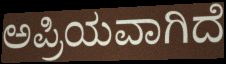
ಅಪ್ರಿಯವಾಗಿದೆ